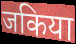
जकिया